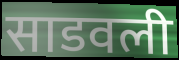
साडवली